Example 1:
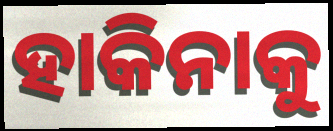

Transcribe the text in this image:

ହାକିନାକୁ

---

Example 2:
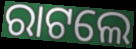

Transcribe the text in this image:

ରାଟଲେ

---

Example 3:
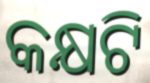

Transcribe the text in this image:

କକ୍ଷଟି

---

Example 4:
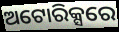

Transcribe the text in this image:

ଅଟୋରିକ୍ସରେ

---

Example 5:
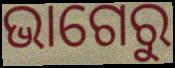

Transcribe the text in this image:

ଭାଗେରୁ